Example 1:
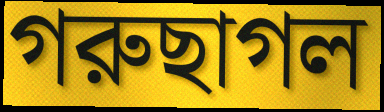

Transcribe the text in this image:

গরুছাগল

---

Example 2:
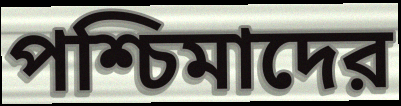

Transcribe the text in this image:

পশ্চিমাদের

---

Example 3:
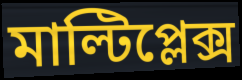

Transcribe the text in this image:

মাল্টিপ্লেক্স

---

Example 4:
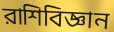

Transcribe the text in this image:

রাশিবিজ্ঞান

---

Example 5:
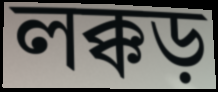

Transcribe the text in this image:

লক্কড়